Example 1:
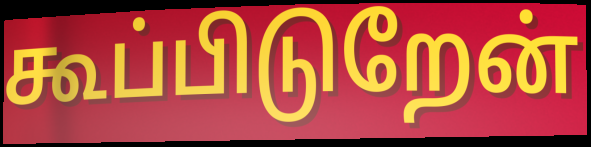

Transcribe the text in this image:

கூப்பிடுறேன்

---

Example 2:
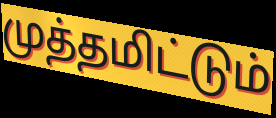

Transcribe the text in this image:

முத்தமிட்டும்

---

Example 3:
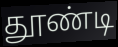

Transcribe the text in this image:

தூண்டி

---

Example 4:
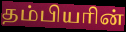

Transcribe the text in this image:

தம்பியரின்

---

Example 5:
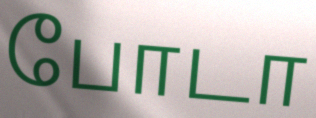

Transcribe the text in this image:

போடா